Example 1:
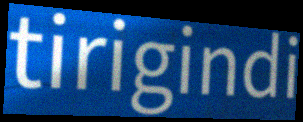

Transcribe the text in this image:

tirigindi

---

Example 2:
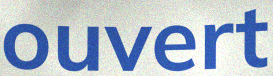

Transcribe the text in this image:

ouvert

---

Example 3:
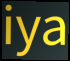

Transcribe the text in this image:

iya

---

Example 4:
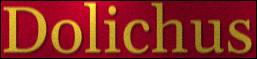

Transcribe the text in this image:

Dolichus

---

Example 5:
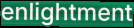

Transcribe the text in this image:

enlightment